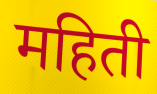
महिती